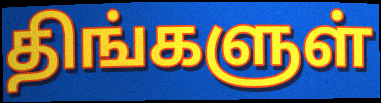
திங்களுள்